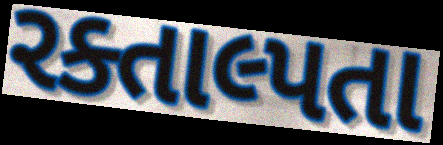
રક્તાલ્પતા